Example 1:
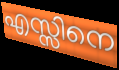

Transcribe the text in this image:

എസ്സിനെ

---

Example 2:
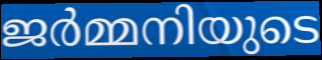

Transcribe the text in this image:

ജർമ്മനിയുടെ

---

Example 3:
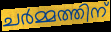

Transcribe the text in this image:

ചർമ്മത്തിന്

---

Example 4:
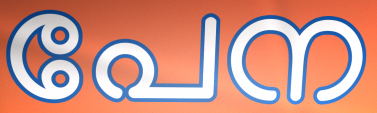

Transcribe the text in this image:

പേന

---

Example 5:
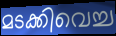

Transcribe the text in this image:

മടക്കിവെച്ച